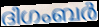
ദിഗംബർ